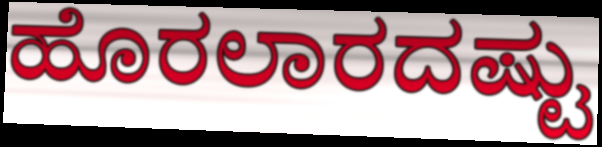
ಹೊರಲಾರದಷ್ಟು